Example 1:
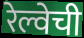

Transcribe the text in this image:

रेल्वेची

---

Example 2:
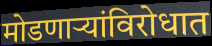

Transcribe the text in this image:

मोडणाऱ्यांविरोधात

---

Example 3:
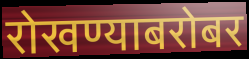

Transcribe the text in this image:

रोखण्याबरोबर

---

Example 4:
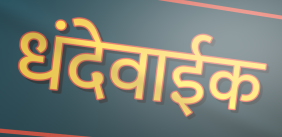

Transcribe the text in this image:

धंदेवाईक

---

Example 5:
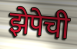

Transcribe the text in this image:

झेपेची